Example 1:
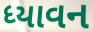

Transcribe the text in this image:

ધ્યાવન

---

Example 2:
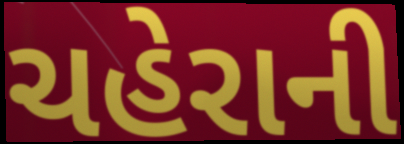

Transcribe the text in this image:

ચહેરાની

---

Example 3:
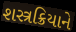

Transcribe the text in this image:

શસ્ત્રક્રિયાને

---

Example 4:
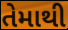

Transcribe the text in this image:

તેમાથી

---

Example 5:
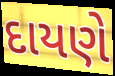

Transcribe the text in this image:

દાયણે